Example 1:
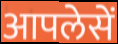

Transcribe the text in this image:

आपलेसें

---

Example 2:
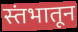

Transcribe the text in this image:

स्तंभातून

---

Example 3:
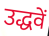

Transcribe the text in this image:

उद्धवें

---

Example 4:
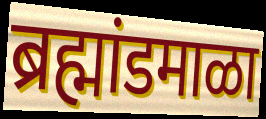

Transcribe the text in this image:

ब्रह्मांडमाळा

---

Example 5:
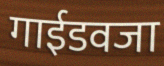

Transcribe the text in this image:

गाईडवजा